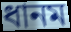
ধানম